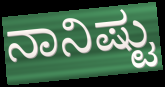
ನಾನಿಷ್ಟು